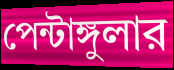
পেন্টাঙ্গুলার